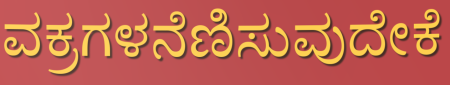
ವಕ್ರಗಳನೆಣಿಸುವುದೇಕೆ